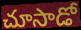
చూసాడో